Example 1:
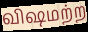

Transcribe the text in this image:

விஷமற்ற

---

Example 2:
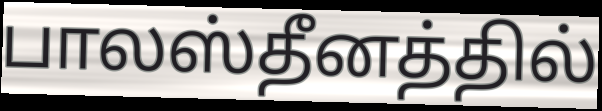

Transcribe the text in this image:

பாலஸ்தீனத்தில்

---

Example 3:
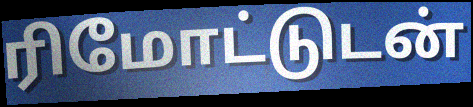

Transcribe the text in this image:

ரிமோட்டுடன்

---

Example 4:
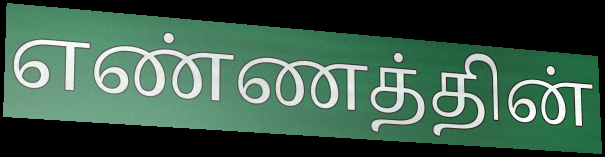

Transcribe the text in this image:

எண்ணத்தின்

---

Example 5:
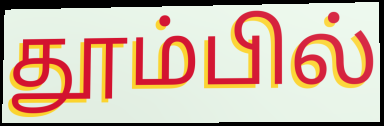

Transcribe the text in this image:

தூம்பில்